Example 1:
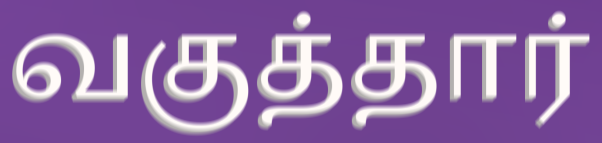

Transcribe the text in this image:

வகுத்தார்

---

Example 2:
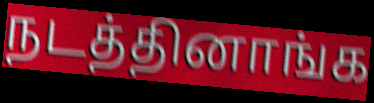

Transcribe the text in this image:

நடத்தினாங்க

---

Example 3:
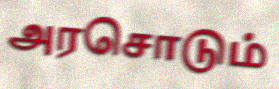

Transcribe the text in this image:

அரசொடும்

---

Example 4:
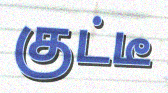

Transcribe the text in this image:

குட்டீ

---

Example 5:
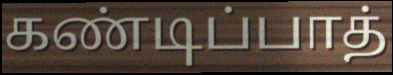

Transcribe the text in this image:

கண்டிப்பாத்